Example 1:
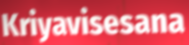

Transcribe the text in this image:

Kriyavisesana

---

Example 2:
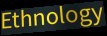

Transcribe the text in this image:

Ethnology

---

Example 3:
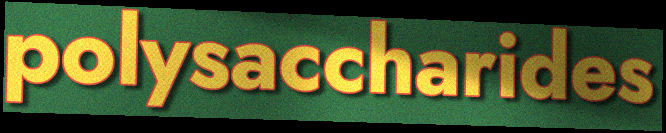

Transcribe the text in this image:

polysaccharides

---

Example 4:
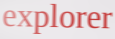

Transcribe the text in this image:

explorer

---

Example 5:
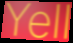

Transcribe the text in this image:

Yell